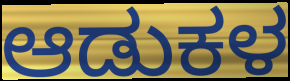
ಆಡುಕಳ